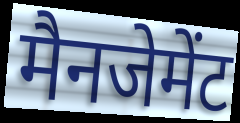
मैनजेमेंट